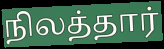
நிலத்தார்